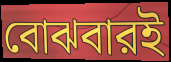
বোঝবারই